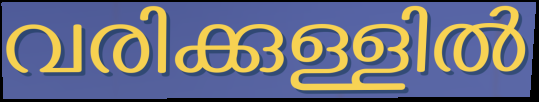
വരിക്കുള്ളിൽ